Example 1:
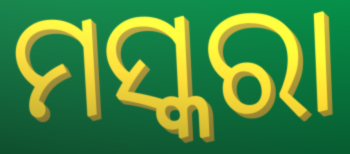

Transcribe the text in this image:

ମସ୍କରା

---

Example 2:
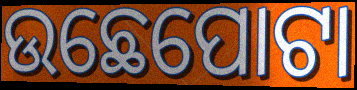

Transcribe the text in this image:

ଉଛେପୋଟା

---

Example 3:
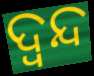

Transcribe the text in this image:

ଦ୍ବନ୍ଦ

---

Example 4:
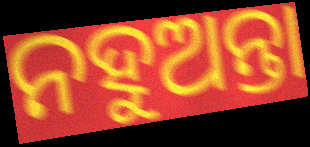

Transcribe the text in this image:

ନହୁଅନ୍ତା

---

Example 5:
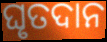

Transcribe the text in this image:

ଘୃତଦାନ